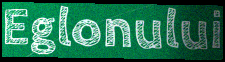
Eglonului